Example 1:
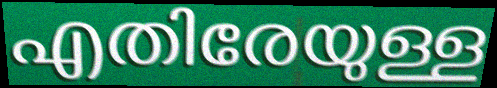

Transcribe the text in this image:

എതിരേയുള്ള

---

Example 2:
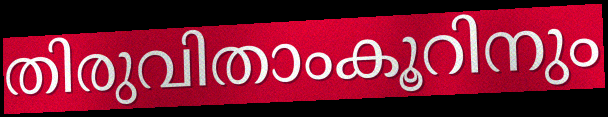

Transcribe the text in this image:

തിരുവിതാംകൂറിനും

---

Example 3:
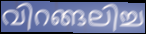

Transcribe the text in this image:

വിറങ്ങലിച്ച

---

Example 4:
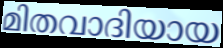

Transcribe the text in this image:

മിതവാദിയായ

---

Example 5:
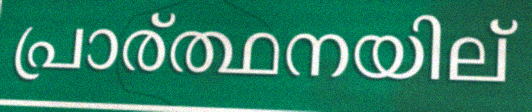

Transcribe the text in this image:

പ്രാര്ത്ഥനയില്